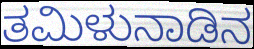
ತಮಿಳುನಾಡಿನ